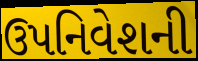
ઉપનિવેશની